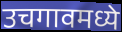
उचगावमध्ये